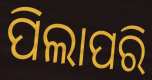
ପିଲାପରି